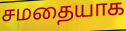
சமதையாக